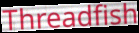
Threadfish